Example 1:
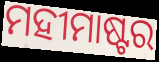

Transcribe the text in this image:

ମହୀମାଷ୍ଟର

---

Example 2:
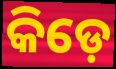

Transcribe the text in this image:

କିଡ଼େ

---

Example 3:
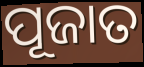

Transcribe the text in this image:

ପୂଜାତ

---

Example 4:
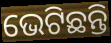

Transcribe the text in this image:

ଭେଟିଛନ୍ତି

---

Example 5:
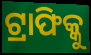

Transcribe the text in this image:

ଟ୍ରାଫିକ୍କୁ